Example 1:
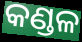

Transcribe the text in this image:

କଣ୍ଡଳ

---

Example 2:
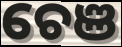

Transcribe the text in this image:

ଚେଞ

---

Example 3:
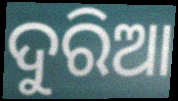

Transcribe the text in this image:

ଦୁରିଆ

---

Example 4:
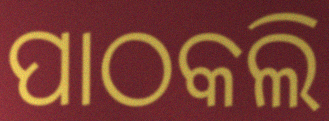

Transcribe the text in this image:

ପାଠକଲି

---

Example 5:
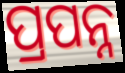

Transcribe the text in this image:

ପ୍ରପନ୍ନ